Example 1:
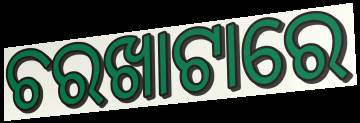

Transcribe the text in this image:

ଚରଖାଟାରେ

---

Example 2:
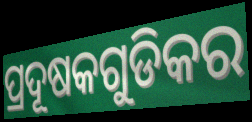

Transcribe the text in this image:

ପ୍ରଦୂଷକଗୁଡିକର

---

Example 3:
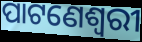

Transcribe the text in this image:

ପାଟଣେଶ୍ୱରୀ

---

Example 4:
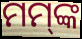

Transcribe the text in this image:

ମମ୍‌ଙ୍କ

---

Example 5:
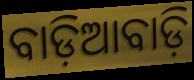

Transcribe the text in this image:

ବାଡ଼ିଆବାଡ଼ି